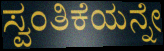
ಸ್ವಂತಿಕೆಯನ್ನೇ